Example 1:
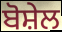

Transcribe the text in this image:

ਬੋਸ਼ੇਲ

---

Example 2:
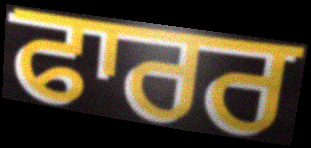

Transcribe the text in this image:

ਫਾਰਰ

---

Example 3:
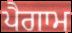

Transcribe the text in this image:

ਪੈਗਾਮ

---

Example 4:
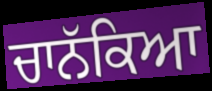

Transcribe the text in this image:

ਚਾਨੱਕਿਆ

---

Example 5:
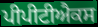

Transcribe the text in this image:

ਪੀਪੀਟੀਐਕਸ